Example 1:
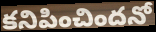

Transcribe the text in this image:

కనిపించిందనో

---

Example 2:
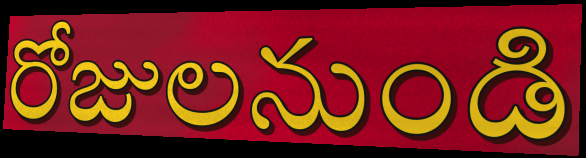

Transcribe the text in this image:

రోజులనుండి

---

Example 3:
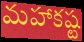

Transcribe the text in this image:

మహాకష్ట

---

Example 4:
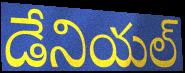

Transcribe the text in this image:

డేనియల్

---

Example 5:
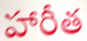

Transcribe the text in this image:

హారీత